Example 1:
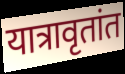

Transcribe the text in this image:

यात्रावृतांत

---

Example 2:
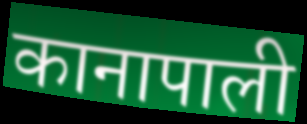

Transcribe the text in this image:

कानापाली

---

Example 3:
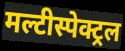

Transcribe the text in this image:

मल्टीस्पेक्ट्रल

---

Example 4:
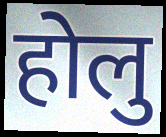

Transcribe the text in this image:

होलु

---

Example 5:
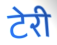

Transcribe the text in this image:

टेरी